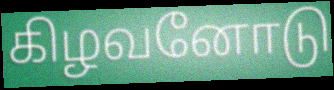
கிழவனோடு